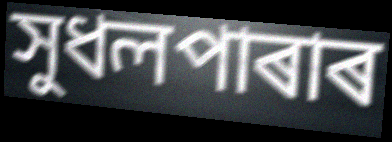
সুধলপাৰাৰ